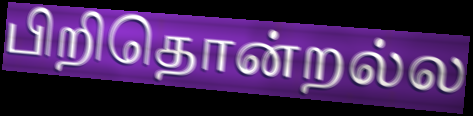
பிறிதொன்றல்ல